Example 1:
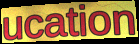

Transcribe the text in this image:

ucation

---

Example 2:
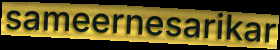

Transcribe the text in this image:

sameernesarikar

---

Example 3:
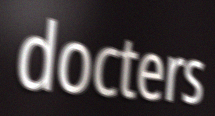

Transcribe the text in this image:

docters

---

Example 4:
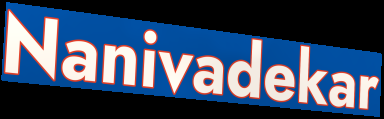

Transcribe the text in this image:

Nanivadekar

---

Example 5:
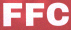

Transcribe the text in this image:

FFC